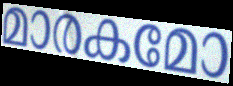
മാരകമോ